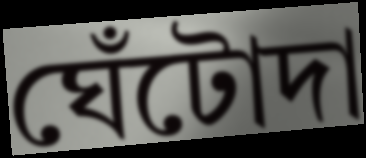
ঘেঁটোদা